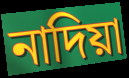
নাদিয়া